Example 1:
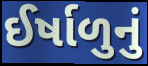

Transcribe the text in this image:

ઈર્ષાળુનું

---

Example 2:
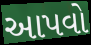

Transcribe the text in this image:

આપવો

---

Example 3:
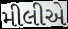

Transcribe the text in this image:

મીલીએ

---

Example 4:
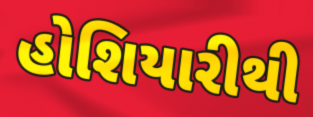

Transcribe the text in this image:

હોશિયારીથી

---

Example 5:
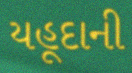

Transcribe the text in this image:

યહૂદાની